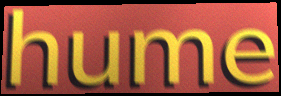
hume